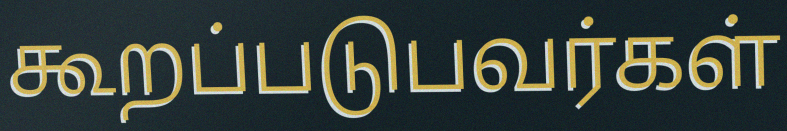
கூறப்படுபவர்கள்